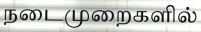
நடைமுறைகளில்